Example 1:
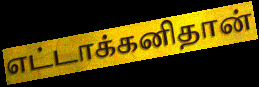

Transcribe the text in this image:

எட்டாக்கனிதான்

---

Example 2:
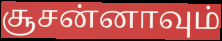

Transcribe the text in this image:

சூசன்னாவும்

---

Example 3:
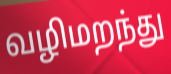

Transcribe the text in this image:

வழிமறந்து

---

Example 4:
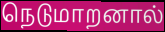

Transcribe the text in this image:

நெடுமாறனால்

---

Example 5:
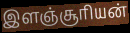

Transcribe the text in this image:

இளஞ்சூரியன்